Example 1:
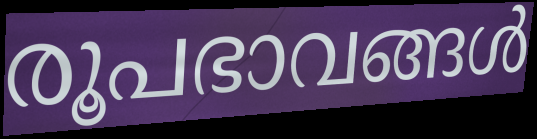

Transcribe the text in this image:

രൂപഭാവങ്ങൾ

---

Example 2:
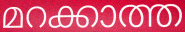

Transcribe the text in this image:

മറക്കാത്ത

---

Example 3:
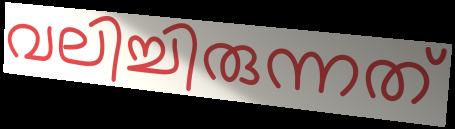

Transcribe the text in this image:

വലിച്ചിരുന്നത്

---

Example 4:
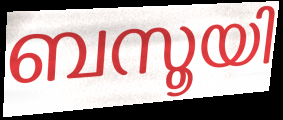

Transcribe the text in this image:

ബസൂയി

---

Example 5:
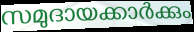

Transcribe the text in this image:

സമുദായക്കാർക്കും